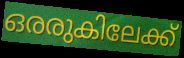
ഒരരുകിലേക്ക്